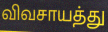
விவசாயத்து